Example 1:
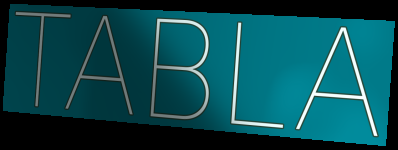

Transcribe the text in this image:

TABLA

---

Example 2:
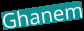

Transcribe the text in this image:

Ghanem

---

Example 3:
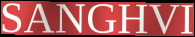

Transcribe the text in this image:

SANGHVI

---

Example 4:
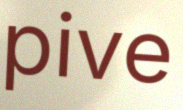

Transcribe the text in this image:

pive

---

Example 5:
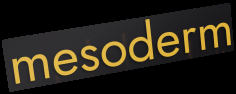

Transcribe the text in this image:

mesoderm